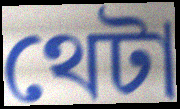
থেটা